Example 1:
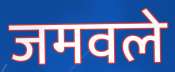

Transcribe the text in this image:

जमवले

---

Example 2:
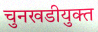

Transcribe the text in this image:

चुनखडीयुक्त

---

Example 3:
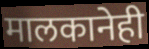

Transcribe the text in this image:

मालकानेही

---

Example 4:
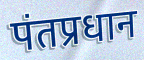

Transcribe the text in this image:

पंतप्रधान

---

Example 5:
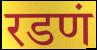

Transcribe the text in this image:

रडणं